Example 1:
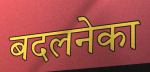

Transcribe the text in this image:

बदलनेका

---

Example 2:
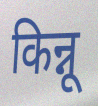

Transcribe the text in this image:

किन्नू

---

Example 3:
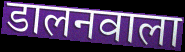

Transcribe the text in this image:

डालनवाला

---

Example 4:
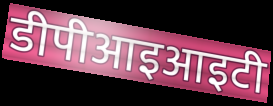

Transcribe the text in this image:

डीपीआइआइटी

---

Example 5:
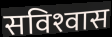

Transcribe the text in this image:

सविश्वास